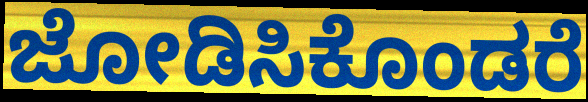
ಜೋಡಿಸಿಕೊಂಡರೆ